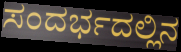
ಸಂದರ್ಭದಲ್ಲಿನ